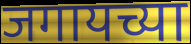
जगायच्या